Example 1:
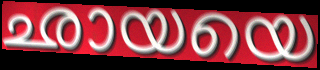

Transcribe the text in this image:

ഛായയെ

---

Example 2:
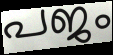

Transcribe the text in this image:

പജം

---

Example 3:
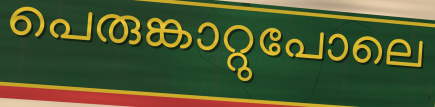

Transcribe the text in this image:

പെരുങ്കാറ്റുപോലെ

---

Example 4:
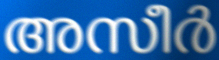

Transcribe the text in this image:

അസീർ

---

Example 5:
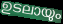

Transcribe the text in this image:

ഉടലായും